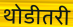
थोडीतरी